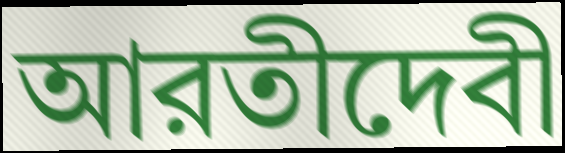
আরতীদেবী